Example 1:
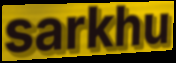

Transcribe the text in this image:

sarkhu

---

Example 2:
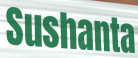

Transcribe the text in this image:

Sushanta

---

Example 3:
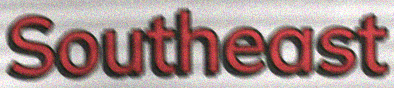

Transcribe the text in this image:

Southeast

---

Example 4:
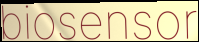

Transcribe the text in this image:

biosensor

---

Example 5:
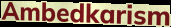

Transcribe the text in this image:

Ambedkarism